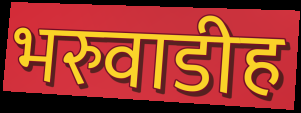
भरुवाडीह